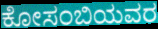
ಕೋಸಂಬಿಯವರ